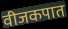
वीजकपात